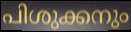
പിശുക്കനും